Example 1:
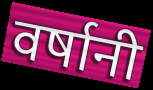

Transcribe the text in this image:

वर्षानी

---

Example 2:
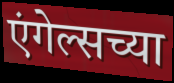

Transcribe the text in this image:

एंगेल्सच्या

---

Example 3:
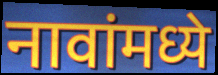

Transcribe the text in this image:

नावांमध्ये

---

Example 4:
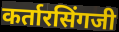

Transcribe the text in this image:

कर्तारसिंगजी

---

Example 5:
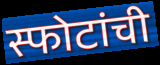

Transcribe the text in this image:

स्फोटांची